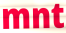
mnt